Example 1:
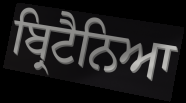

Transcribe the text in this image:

ਬ੍ਰਿਟੈਨਿਆ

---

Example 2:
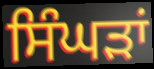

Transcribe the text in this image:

ਸਿੰਘੜਾਂ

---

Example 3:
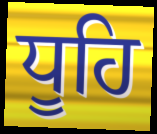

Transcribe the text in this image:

ਧੂਹਿ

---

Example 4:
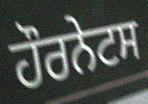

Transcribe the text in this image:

ਹੌਰਨੇਟਸ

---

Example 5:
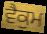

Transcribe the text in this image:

ਵੈਕੁਮ